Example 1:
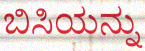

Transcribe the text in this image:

ಬಿಸಿಯನ್ನು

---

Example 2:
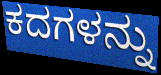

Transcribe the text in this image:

ಕದಗಳನ್ನು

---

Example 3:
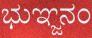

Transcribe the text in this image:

ಭುಞ್ಜನಂ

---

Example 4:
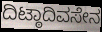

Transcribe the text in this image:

ದಿಟ್ಠಾದಿವಸೇನ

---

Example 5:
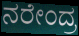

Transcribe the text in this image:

ನರೇಂದ್ರ